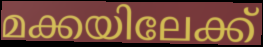
മക്കയിലേക്ക്